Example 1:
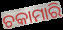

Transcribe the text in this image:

ଚକାମାରି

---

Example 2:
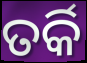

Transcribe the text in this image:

ତର୍କି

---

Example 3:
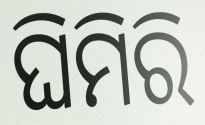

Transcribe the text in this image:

ଘିମିରି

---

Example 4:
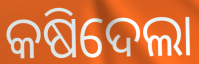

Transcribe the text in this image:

କଷିଦେଲା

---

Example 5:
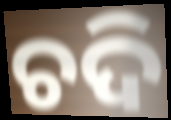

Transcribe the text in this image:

ଚଦି